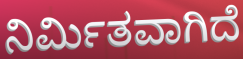
ನಿರ್ಮಿತವಾಗಿದೆ